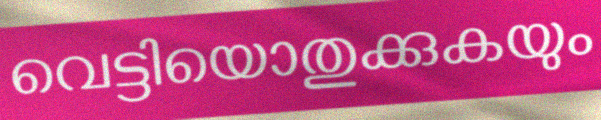
വെട്ടിയൊതുക്കുകയും